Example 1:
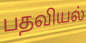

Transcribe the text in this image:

பதவியல்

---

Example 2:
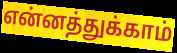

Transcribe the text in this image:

என்னத்துக்காம்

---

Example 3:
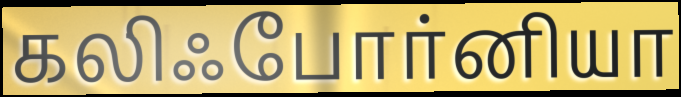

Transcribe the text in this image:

கலிஃபோர்னியா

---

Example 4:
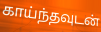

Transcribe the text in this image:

காய்ந்தவுடன்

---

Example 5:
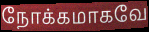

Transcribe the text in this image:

நோக்கமாகவே